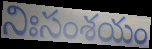
నిఃసంశయం